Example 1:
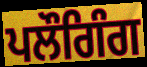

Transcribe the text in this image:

ਪਲੌਗਿੰਗ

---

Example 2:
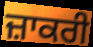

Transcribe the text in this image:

ਜ਼ਾਕਰੀ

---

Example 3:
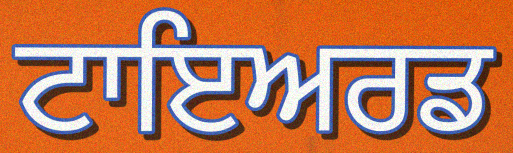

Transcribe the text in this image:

ਟਾਇਅਰਡ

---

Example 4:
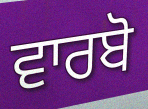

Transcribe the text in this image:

ਵਾਰਬੋ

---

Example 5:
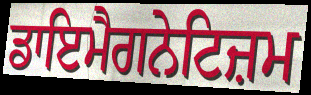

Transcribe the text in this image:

ਡਾਇਮੈਗਨੇਟਿਜ਼ਮ